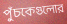
পুঁচকেগুলোর